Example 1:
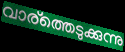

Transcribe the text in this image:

വാര്ത്തെടുക്കുന്നു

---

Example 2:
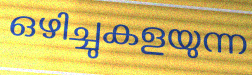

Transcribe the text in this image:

ഒഴിച്ചുകളയുന്ന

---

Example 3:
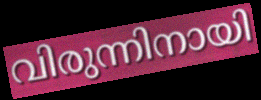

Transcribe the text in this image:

വിരുന്നിനായി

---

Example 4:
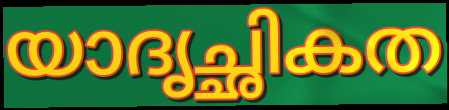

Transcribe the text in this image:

യാദൃച്ഛികത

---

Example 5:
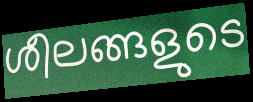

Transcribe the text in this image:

ശീലങ്ങളുടെ